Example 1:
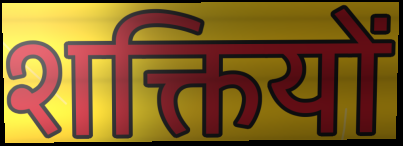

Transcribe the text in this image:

शक्तियों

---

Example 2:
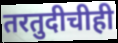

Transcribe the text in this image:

तरतुदीचीही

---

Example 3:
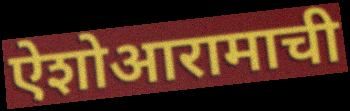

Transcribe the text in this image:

ऐशोआरामाची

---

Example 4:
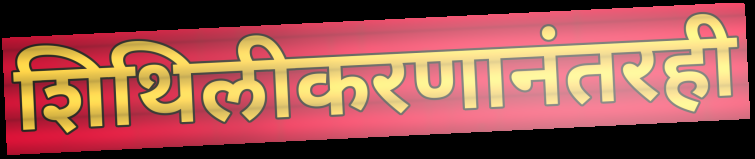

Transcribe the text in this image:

शिथिलीकरणानंतरही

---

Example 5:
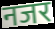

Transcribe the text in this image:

नजर